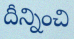
దీన్నించి